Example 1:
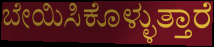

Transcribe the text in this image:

ಬೇಯಿಸಿಕೊಳ್ಳುತ್ತಾರೆ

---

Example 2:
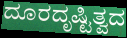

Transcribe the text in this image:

ದೂರದೃಷ್ಟಿತ್ವದ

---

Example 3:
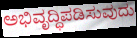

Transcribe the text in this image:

ಅಭಿವೃದ್ಧಿಪಡಿಸುವುದು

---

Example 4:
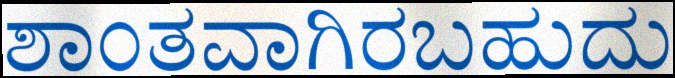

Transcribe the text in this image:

ಶಾಂತವಾಗಿರಬಹುದು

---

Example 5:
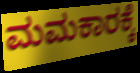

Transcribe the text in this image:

ಮಮಕಾರಕ್ಕೆ